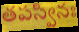
తపస్వినః